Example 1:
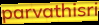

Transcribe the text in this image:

parvathisri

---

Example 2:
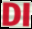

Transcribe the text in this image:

DI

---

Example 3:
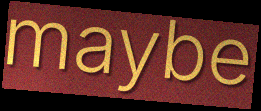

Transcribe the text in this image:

maybe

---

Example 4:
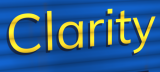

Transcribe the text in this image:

Clarity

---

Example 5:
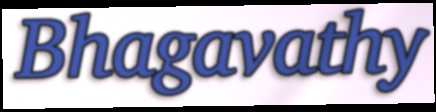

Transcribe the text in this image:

Bhagavathy